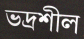
ভদ্রশীল